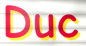
Duc